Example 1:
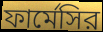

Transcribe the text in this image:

ফার্মেসির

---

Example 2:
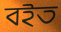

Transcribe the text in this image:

বইত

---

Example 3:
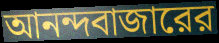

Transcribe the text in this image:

আনন্দবাজারের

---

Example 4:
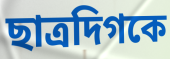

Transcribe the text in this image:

ছাত্রদিগকে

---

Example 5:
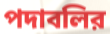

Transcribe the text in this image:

পদাবলির